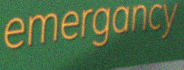
emergancy